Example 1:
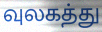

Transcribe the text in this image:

வுலகத்து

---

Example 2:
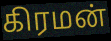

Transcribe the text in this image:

கிரமன்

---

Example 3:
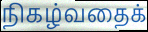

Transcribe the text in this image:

நிகழ்வதைக்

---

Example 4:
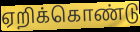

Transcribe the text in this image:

ஏறிக்கொண்டு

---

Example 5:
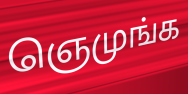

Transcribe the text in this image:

ஞெமுங்க